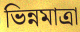
ভিন্নমাত্রা